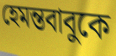
হেমন্তবাবুকে